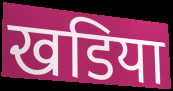
खडिया